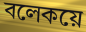
বলেকয়ে